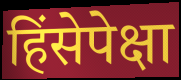
हिंसेपेक्षा